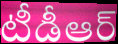
టీడీఆర్